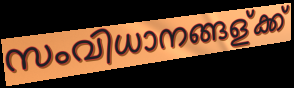
സംവിധാനങ്ങള്ക്ക്